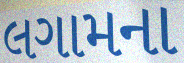
લગામના